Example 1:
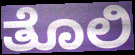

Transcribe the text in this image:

ತೊಲಿ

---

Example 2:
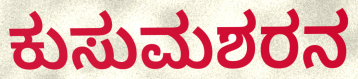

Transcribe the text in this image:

ಕುಸುಮಶರನ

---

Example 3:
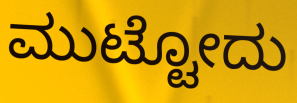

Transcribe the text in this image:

ಮುಟ್ಟೋದು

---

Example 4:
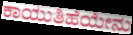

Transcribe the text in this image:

ಕಾಯುತಿಹೆಯೇನು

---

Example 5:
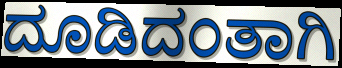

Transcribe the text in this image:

ದೂಡಿದಂತಾಗಿ